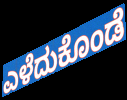
ಎಳೆದುಕೊಂಡೆ